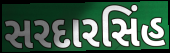
સરદારસિંહ